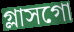
গ্লাসগো